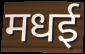
मधई